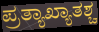
ಪ್ರತ್ಯಾಖ್ಯಾತಶ್ಚ